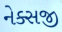
નેક્સજી